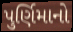
પુર્ણિમાનો